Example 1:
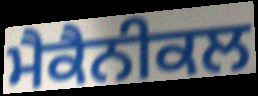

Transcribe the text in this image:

ਮੈਕੈਨੀਕਲ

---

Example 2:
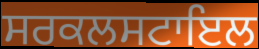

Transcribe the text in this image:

ਸਰਕਲਸਟਾਇਲ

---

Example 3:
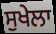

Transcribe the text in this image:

ਸੁਖੇਲਾ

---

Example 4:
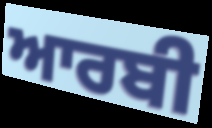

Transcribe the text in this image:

ਆਰਬੀ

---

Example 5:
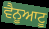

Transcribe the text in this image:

ਵੈਨੂਆਟੂ